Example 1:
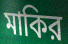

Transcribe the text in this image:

মাকির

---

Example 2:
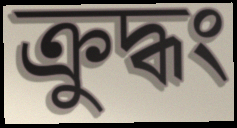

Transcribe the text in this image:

ক্রুদ্ধং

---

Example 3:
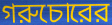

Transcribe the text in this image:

গরুচোরের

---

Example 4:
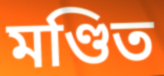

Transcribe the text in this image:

মণ্ডিত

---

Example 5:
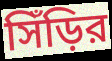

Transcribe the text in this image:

সিঁড়ির